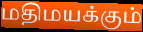
மதிமயக்கும்